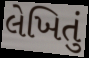
લેખિતું